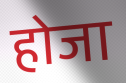
होजा